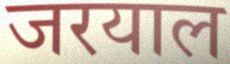
जरयाल